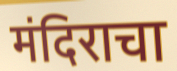
मंदिराचा